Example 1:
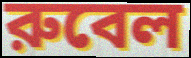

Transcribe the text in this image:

রুবেল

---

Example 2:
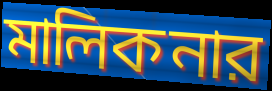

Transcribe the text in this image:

মালিকনার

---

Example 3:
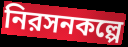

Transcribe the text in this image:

নিরসনকল্পে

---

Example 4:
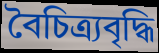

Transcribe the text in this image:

বৈচিত্র্যবৃদ্ধি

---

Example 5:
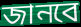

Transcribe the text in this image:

জানবে